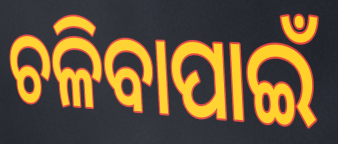
ଚଳିବାପାଇଁ